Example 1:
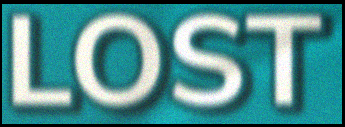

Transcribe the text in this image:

LOST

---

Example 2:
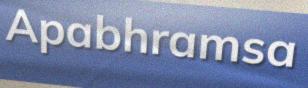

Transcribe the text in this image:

Apabhramsa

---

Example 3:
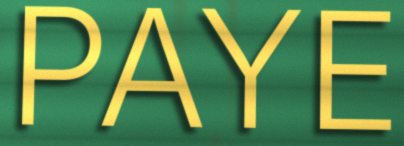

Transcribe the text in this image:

PAYE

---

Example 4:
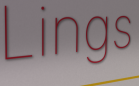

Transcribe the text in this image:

Lings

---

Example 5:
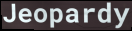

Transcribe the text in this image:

Jeopardy